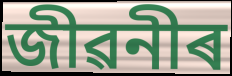
জীৱনীৰ